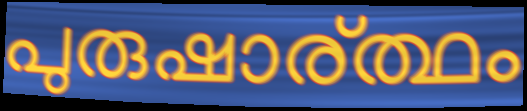
പുരുഷാര്ത്ഥം